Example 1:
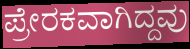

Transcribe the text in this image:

ಪ್ರೇರಕವಾಗಿದ್ದವು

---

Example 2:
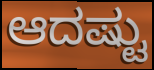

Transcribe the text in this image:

ಆದಷ್ಟು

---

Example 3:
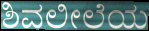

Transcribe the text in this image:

ಶಿವಲೀಲೆಯ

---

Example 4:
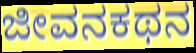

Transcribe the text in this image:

ಜೀವನಕಥನ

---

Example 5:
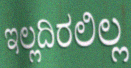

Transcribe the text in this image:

ಇಲ್ಲದಿರಲಿಲ್ಲ